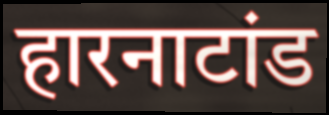
हारनाटांड